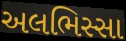
અલભિસ્સા